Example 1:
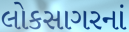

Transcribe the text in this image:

લોકસાગરનાં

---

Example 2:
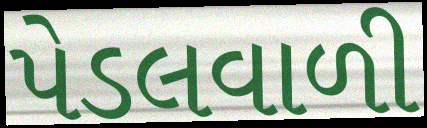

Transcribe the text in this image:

પેડલવાળી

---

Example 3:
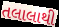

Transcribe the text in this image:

તલાલાથી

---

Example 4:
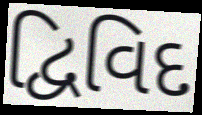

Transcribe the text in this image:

દ્વિવિદ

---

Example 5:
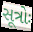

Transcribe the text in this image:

સૂત્રોઃ